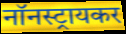
नॉनस्ट्रायकर